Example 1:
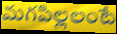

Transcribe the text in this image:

మగపిల్లలంటే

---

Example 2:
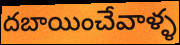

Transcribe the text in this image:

దబాయించేవాళ్ళ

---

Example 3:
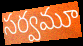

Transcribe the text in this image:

సర్వమూ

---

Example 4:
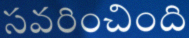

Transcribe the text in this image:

సవరించింది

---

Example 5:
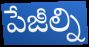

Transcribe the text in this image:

పేజీల్ని